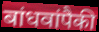
बांधवांपैकी